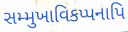
સમ્મુખાવિકપ્પનાપિ